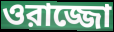
ওরাজ্জো